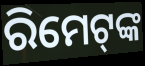
ରିମେଟ୍‍ଙ୍କ